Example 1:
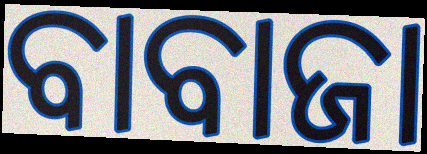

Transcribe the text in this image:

ବାବାଜା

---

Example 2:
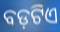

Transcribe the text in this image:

ବଡ଼ଟିଏ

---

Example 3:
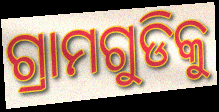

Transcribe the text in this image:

ଗ୍ରାମଗୁଡିକୁ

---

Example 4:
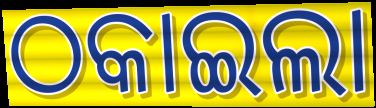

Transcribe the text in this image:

ଠକାଇଲା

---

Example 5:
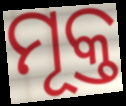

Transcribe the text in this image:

ମୂକ୍ତ